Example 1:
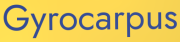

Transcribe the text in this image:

Gyrocarpus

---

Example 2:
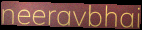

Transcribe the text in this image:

neeravbhai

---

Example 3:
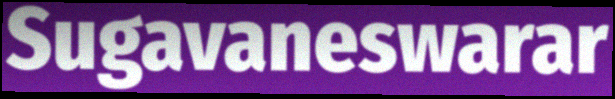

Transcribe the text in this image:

Sugavaneswarar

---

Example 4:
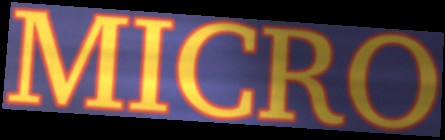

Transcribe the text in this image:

MICRO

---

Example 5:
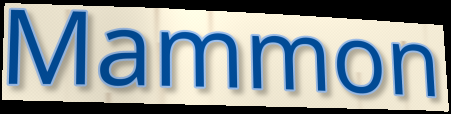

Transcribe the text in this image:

Mammon